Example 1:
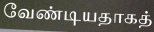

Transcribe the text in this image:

வேண்டியதாகத்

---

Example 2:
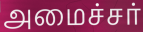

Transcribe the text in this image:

அமைச்சர்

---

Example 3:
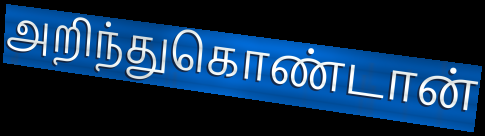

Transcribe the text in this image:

அறிந்துகொண்டான்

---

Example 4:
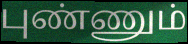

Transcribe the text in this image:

புண்ணும்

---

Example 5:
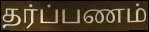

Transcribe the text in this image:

தர்ப்பணம்